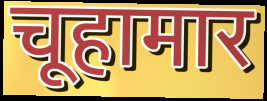
चूहामार